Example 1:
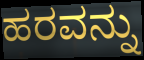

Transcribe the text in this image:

ಹರವನ್ನು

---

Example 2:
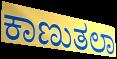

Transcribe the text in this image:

ಕಾಣುತಲಾ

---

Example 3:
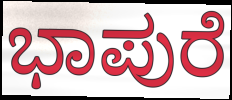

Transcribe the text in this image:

ಭಾಪುರೆ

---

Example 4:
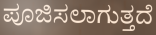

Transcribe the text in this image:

ಪೂಜಿಸಲಾಗುತ್ತದೆ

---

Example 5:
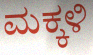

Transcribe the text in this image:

ಮಕ್ಕಳಿ